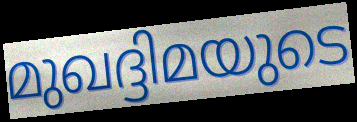
മുഖദ്ദിമയുടെ